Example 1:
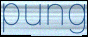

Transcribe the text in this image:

pung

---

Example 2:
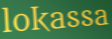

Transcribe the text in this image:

lokassa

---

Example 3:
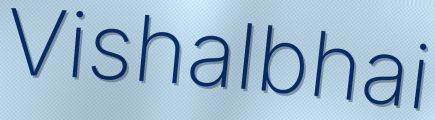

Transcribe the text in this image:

Vishalbhai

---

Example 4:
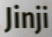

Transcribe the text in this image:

Jinji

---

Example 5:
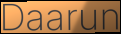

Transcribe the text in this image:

Daarun